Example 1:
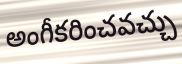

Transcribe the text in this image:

అంగీకరించవచ్చు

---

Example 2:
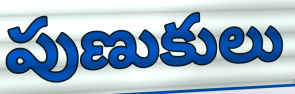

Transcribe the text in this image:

పుణుకులు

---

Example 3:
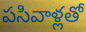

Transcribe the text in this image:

పసివాళ్లతో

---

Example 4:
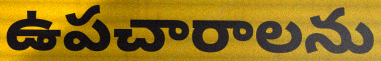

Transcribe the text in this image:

ఉపచారాలను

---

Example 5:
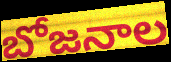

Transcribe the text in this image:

బోజనాల